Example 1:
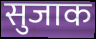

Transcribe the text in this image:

सुजाक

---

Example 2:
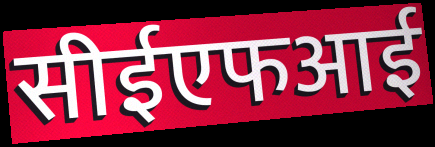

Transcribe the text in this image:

सीईएफआई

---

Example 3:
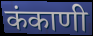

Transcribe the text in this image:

कंकाणी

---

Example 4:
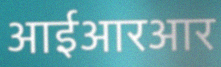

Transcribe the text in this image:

आईआरआर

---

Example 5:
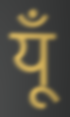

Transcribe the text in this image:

यूँ